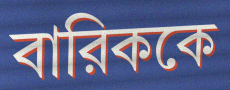
বারিককে